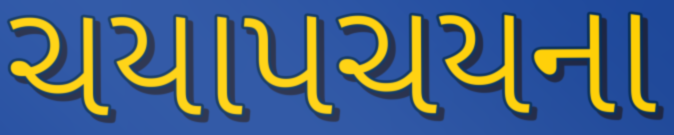
ચયાપચયના